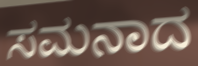
ಸಮನಾದ